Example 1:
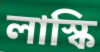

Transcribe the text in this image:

লাস্কি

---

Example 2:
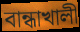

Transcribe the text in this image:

বান্ধাখালী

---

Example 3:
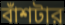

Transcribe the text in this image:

বাঁশটার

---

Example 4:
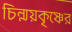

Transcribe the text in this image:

চিন্ময়কৃষ্ণের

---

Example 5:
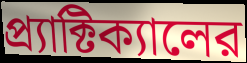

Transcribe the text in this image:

প্র্যাক্টিক্যালের